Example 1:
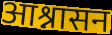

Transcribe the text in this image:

आश्नासन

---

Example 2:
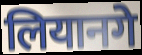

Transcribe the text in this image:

लियानगे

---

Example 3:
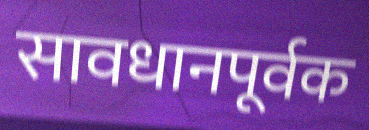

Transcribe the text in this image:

सावधानपूर्वक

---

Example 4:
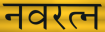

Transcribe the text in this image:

नवरत्न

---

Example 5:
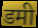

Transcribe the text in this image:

डमी